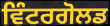
ਵਿੰਟਰਗੋਲਡ